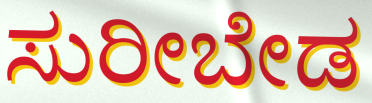
ಸುರೀಬೇಡ